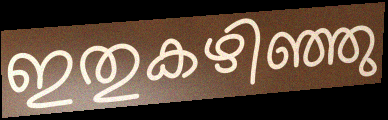
ഇതുകഴിഞ്ഞു